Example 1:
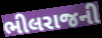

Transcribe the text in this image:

ભીલરાજની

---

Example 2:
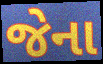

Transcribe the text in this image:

જેના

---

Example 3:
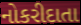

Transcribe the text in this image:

નોકરીદાતા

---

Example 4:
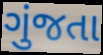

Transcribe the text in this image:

ગુંજતા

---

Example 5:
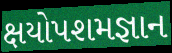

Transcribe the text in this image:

ક્ષયોપશમજ્ઞાન